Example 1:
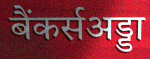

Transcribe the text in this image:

बैंकर्सअड्डा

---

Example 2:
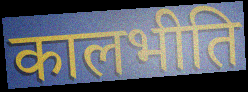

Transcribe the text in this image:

कालभीति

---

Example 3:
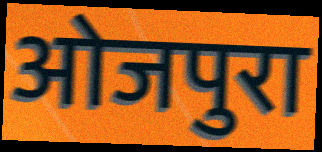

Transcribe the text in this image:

ओजपुरा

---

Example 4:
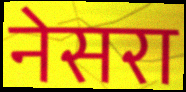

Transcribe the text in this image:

नेसरा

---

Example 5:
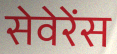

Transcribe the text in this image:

सेवेरेंस